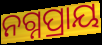
ନଗ୍ନପ୍ରାୟ